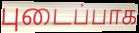
புடைப்பாக